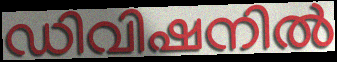
ഡിവിഷനിൽ